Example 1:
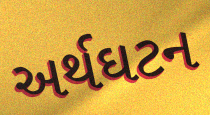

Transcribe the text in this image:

અર્થઘટન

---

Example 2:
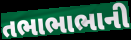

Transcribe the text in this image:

તભાભાભાની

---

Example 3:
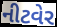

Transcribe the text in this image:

નીટવેર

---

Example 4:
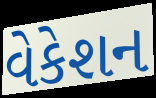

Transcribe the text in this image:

વેકેશન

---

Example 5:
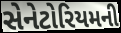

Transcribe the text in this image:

સેનેટોરિયમની